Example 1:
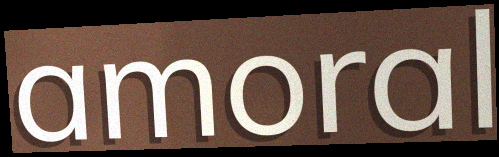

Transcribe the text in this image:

amoral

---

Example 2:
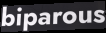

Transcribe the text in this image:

biparous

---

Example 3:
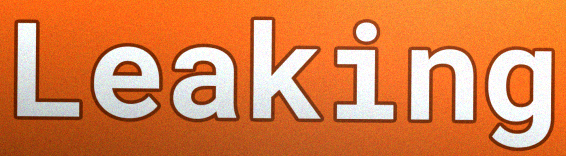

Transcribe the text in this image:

Leaking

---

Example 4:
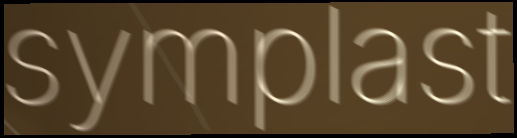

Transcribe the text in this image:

symplast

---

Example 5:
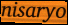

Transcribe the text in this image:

nisaryo